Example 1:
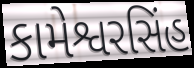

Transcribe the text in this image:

કામેશ્વરસિંહ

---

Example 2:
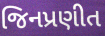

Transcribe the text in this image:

જિનપ્રણીત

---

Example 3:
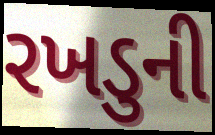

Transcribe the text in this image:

રખડુની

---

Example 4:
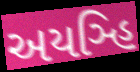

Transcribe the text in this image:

અયઞ્હિ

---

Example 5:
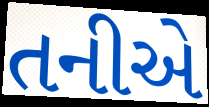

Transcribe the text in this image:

તનીએ